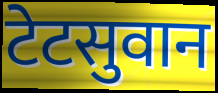
टेटसुवान